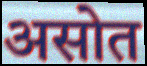
असोत